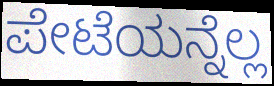
ಪೇಟೆಯನ್ನೆಲ್ಲ